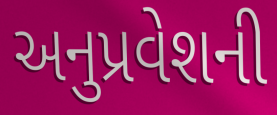
અનુપ્રવેશની